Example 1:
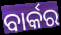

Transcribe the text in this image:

ବାର୍କର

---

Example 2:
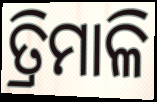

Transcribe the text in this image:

ତ୍ରିମାଳି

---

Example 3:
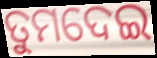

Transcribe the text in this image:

ତୁମଦେଇ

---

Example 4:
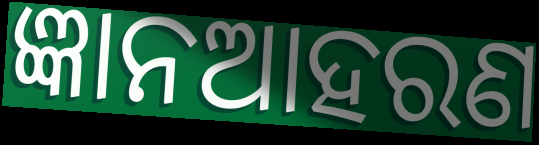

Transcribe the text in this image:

ଜ୍ଞାନଆହରଣ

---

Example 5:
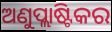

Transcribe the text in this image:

ଅଣୁପ୍ଲାଷ୍ଟିକର